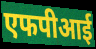
एफपीआई